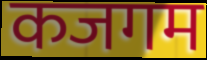
कजगम